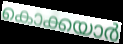
കൊക്കയാർ